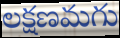
లక్షణమగు